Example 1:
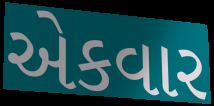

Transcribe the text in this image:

એકવાર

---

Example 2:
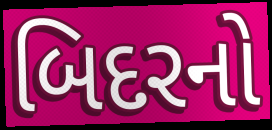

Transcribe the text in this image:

બિદરનો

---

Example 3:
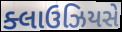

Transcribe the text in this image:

ક્લાઉઝિયસે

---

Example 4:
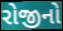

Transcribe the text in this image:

રોજીનો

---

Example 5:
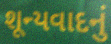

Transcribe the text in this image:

શૂન્યવાદનું